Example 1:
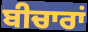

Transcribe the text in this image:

ਬੀਚਾਰਾਂ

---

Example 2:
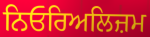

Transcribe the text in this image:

ਨਿਓਰਿਅਲਿਜ਼ਮ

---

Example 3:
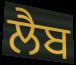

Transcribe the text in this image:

ਲੈਬ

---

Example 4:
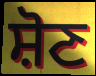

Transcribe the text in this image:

ਸ਼ੋਣ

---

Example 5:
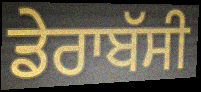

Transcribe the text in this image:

ਡੇਰਾਬੱਸੀ